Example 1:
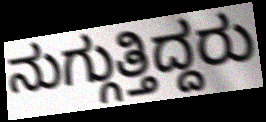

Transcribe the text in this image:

ನುಗ್ಗುತ್ತಿದ್ದರು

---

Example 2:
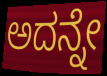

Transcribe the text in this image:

ಅದನ್ನೇ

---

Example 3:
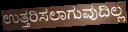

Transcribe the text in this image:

ಉತ್ತರಿಸಲಾಗುವುದಿಲ್ಲ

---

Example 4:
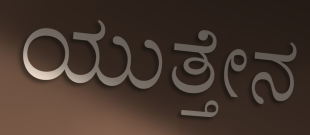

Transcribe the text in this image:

ಯುತ್ತೇನ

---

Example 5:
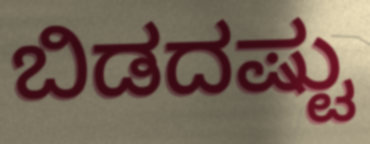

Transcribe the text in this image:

ಬಿಡದಷ್ಟು